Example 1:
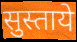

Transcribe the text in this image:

सुस्ताये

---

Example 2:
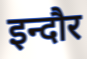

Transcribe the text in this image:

इन्दौर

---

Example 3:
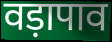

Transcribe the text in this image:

वड़ापाव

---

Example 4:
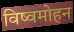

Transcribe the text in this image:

विष्वमोहन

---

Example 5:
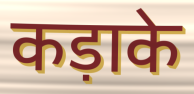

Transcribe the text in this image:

कड़ाके